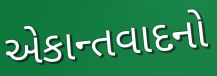
એકાન્તવાદનો